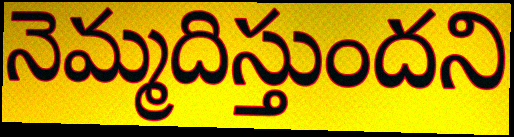
నెమ్మదిస్తుందని